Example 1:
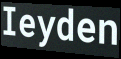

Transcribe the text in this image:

Ieyden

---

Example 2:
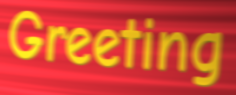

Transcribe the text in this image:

Greeting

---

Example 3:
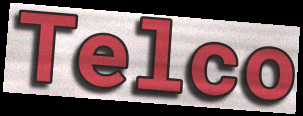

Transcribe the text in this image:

Telco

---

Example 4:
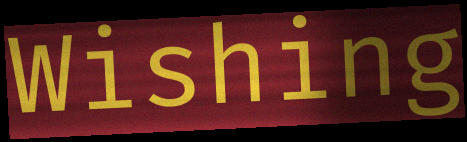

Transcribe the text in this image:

Wishing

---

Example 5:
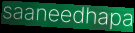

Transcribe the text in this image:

saaneedhapa